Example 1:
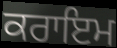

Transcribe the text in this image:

ਕਰਾਇਮ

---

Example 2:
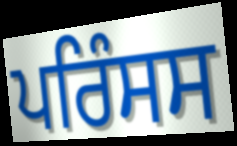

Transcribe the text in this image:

ਪਰਿੰਸਸ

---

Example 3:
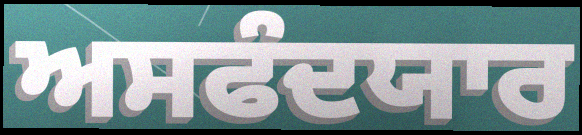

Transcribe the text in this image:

ਅਸਫੰਦਯਾਰ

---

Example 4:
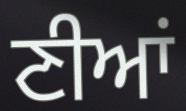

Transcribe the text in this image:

ਣੀਆਂ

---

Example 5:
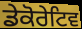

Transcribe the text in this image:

ਡੇਕੋਰੇਟਿਵ